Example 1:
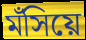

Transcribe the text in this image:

মঁসিয়ে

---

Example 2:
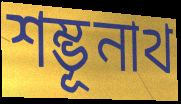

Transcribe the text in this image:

শম্ভূনাথ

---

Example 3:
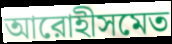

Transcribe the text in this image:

আরোহীসমেত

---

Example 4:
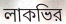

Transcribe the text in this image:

লাকভির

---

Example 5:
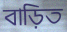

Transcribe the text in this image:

বাড়িত